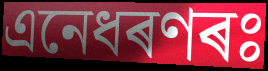
এনেধৰণৰঃ